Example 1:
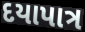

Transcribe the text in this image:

દયાપાત્ર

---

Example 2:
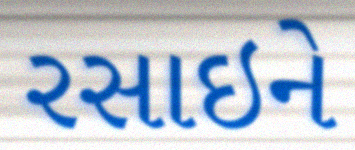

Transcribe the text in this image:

રસાઇને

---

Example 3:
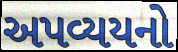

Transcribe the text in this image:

અપવ્યયનો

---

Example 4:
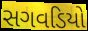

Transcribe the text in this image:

સગવડિયો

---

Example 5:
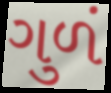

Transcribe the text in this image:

ગુળં